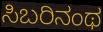
ಸಿಬರಿನಂಥ